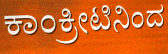
ಕಾಂಕ್ರೀಟಿನಿಂದ